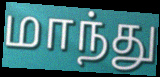
மாந்து